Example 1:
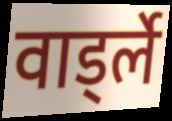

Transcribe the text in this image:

वार्ड्ले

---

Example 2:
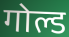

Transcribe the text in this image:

गोल्‍ड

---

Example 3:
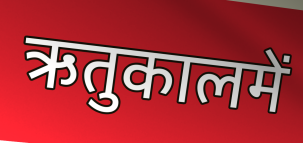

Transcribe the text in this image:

ऋतुकालमें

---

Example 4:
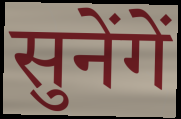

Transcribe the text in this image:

सुनेंगें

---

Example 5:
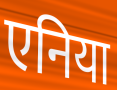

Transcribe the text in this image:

एनिया